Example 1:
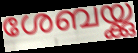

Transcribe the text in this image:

ശേബയ്ക്കു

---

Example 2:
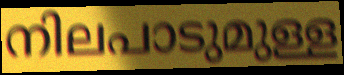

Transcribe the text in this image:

നിലപാടുമുള്ള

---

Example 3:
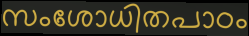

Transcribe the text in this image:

സംശോധിതപാഠം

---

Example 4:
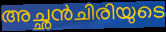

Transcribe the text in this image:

അച്ഛൻചിരിയുടെ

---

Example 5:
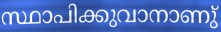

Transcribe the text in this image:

സ്ഥാപിക്കുവാനാണു്